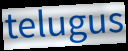
telugus